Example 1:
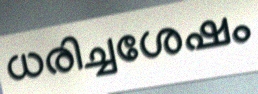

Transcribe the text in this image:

ധരിച്ചശേഷം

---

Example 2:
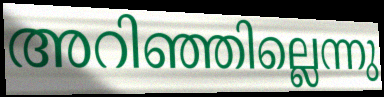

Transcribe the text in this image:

അറിഞ്ഞില്ലെന്നു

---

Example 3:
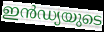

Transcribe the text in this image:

ഇൻഡ്യയുടെ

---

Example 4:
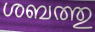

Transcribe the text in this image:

ശബത്തു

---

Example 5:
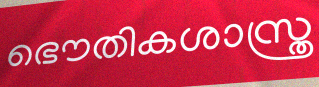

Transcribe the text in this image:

ഭൌതികശാസ്ത്ര